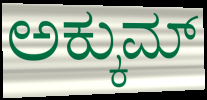
ಅಕ್ಕುಮ್